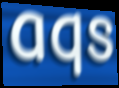
aqs